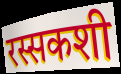
रस्सकशी